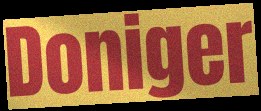
Doniger